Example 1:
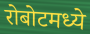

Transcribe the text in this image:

रोबोटमध्ये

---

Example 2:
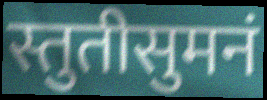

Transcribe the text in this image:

स्तुतीसुमनं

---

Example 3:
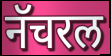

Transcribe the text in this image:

नॅचरल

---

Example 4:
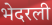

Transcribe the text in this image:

भेदरली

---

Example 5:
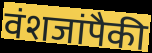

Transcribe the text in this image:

वंशजांपैकी